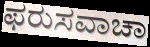
ಫರುಸವಾಚಾ